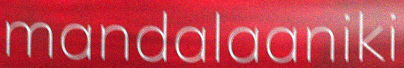
mandalaaniki